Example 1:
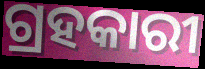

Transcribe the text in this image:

ଗ୍ରହକାରୀ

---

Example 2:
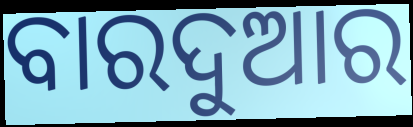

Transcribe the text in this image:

ବାରଦୁଆର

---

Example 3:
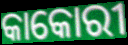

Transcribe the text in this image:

କାକୋରୀ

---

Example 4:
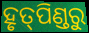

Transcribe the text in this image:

ହୃତ୍‌ପିଣ୍ଡରୁ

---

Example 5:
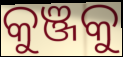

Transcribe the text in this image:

କୁଞ୍ଜକୁ